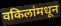
वकिलांमधून